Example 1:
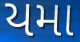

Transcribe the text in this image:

યમા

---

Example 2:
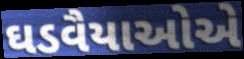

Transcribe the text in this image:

ઘડવૈયાઓએ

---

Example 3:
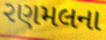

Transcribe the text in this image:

રણમલના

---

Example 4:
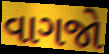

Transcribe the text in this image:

વાગજો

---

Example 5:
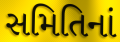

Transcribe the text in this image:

સમિતિનાં